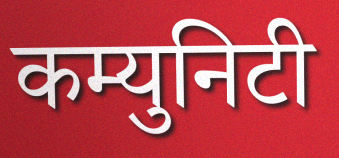
कम्युनिटी